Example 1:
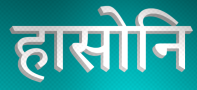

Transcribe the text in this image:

हासोनि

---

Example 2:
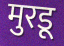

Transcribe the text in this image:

मुरडू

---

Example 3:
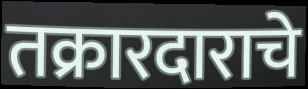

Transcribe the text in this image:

तक्रारदाराचे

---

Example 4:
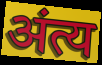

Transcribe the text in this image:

अंत्य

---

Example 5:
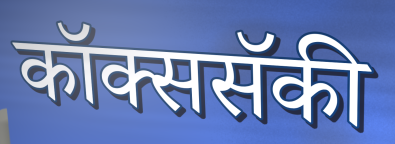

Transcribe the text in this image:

कॉक्ससॅकी